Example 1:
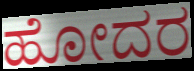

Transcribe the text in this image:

ಹೋದರ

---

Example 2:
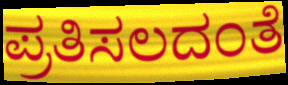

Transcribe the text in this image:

ಪ್ರತಿಸಲದಂತೆ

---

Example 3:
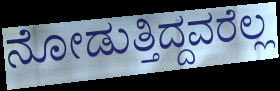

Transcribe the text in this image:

ನೋಡುತ್ತಿದ್ದವರೆಲ್ಲ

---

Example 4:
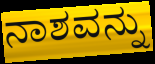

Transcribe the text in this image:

ನಾಶವನ್ನು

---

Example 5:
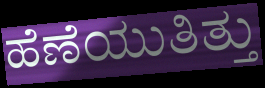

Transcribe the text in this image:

ಹೆಣೆಯುತಿತ್ತು